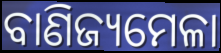
ବାଣିଜ୍ୟମେଳା